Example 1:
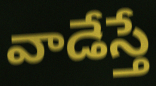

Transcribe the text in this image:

వాడేస్తే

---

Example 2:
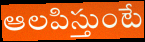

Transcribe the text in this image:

ఆలపిస్తుంటే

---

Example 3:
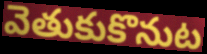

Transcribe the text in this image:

వెతుకుకొనుట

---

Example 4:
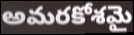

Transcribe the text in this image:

అమరకోశమై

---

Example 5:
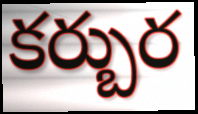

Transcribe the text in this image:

కర్బుర